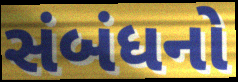
સંબંધનો